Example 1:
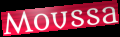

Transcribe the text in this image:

Moussa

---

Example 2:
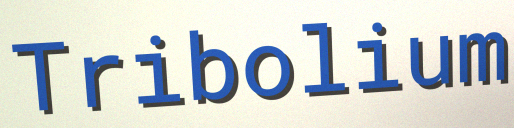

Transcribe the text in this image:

Tribolium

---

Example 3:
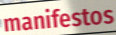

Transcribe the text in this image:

manifestos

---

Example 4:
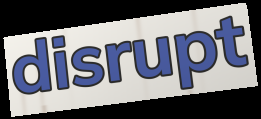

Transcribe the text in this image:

disrupt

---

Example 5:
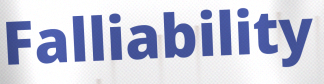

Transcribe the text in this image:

Falliability